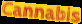
Cannabis